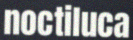
noctiluca